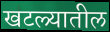
खटल्यातील